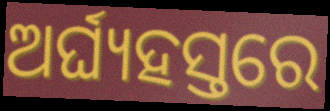
ଅର୍ଘ୍ୟହସ୍ତରେ